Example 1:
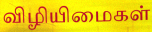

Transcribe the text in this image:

விழியிமைகள்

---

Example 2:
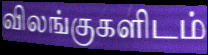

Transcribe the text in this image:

விலங்குகளிடம்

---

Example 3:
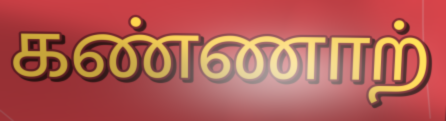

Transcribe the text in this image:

கண்ணாற்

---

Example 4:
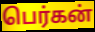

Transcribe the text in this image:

பெர்கன்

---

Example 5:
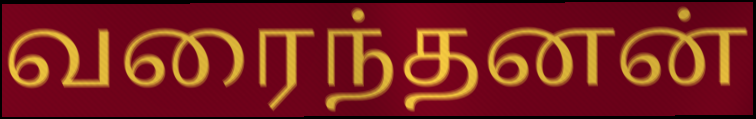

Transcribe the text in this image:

வரைந்தனன்